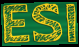
ESI